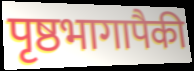
पृष्ठभागापैकी